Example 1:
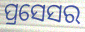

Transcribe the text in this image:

ପ୍ରସେସର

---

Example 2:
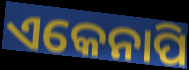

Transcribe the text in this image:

ଏକେନାପି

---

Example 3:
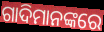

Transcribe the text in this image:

ଗାଦିମାନଙ୍କରେ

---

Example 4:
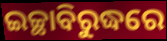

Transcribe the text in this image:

ଇଚ୍ଛାବିରୁଦ୍ଧରେ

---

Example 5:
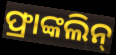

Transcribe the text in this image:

ଫ୍ରାଙ୍କଲିନ୍